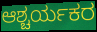
ಆಶ್ಚರ್ಯಕರ